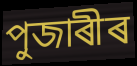
পুজাৰীৰ